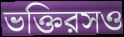
ভক্তিরসও